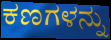
ಕಣಗಳನ್ನು